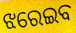
ଝରେଇବ